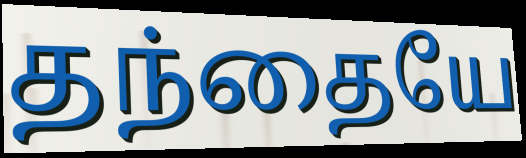
தந்தையே